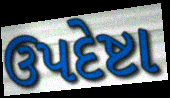
ઉપદેષ્ટા